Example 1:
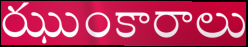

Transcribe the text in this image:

ఝుంకారాలు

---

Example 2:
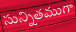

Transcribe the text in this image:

సున్నితముగా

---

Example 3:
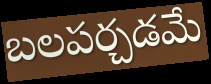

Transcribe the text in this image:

బలపర్చడమే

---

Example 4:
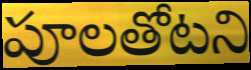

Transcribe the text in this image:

పూలతోటని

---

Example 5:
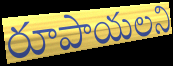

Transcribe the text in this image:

రూపాయలని